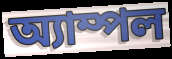
অ্যাম্পল